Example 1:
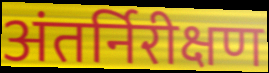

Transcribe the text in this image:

अंतर्निरीक्षण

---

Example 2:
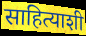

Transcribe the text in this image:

साहित्याशी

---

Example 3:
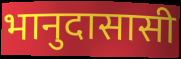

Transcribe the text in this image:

भानुदासासी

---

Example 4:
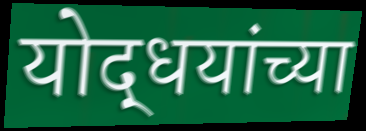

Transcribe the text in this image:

योद्धयांच्या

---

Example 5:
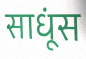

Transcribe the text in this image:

साधूंस